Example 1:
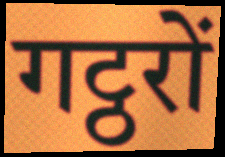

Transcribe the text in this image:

गट्ठरों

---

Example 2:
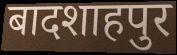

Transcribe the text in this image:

बादशाहपुर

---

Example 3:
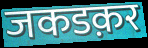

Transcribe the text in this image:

जकडक़र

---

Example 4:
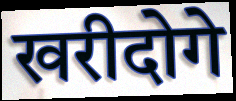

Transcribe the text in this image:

खरीदोगे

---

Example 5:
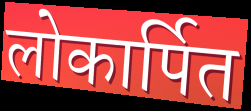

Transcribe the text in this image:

लोकार्पित